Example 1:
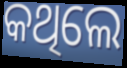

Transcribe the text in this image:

କଥିଲେ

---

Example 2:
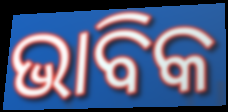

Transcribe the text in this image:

ଭାବିକ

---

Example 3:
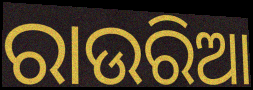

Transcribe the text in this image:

ରାଉରିଆ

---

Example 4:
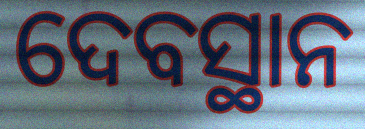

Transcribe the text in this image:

ଦେବସ୍ଥାନ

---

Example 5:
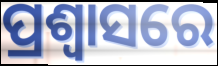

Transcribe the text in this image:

ପ୍ରଶ୍ବାସରେ